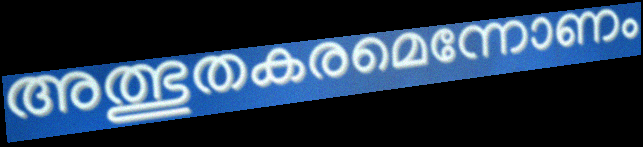
അത്ഭുതകരമെന്നോണം